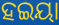
ହଇୟା